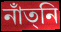
নাঁত্‌নি